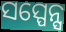
ସସ୍ପେନ୍ସ